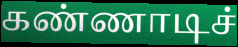
கண்ணாடிச்